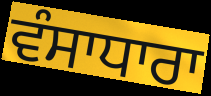
ਵੰਸਾਧਾਰਾ